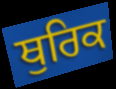
ਥੁਰਿਕ